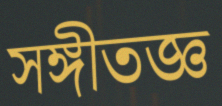
সঙ্গীতজ্ঞ